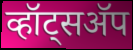
व्हॉट्सॲप